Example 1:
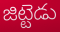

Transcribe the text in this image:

జిట్టెడు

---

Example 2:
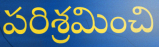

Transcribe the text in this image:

పరిశ్రమించి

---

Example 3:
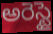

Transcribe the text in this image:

అరెస్టై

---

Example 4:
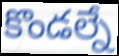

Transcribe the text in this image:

కొండల్నే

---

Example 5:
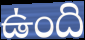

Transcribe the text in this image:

ఉంది